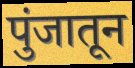
पुंजातून